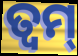
ତ୍ଵମ୍